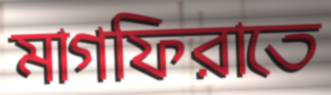
মাগফিরাতে